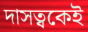
দাসত্বকেই